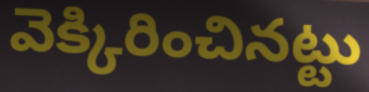
వెక్కిరించినట్టు